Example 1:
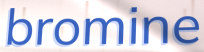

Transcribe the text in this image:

bromine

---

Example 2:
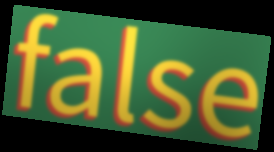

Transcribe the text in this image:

false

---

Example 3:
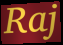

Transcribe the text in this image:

Raj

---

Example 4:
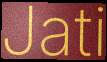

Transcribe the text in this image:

Jati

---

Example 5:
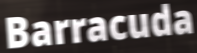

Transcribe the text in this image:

Barracuda